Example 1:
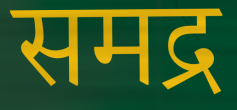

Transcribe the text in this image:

समद्र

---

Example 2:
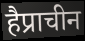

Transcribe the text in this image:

हैप्राचीन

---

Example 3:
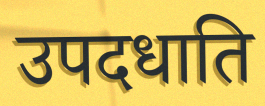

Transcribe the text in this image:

उपदधाति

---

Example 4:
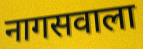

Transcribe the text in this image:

नागसवाला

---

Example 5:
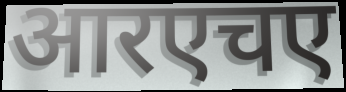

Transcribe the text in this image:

आरएचए